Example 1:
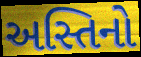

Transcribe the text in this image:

અસ્તિનો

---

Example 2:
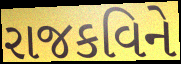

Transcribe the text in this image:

રાજકવિને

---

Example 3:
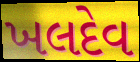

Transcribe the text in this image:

ખલદેવ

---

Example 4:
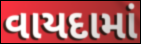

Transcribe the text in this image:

વાયદામાં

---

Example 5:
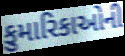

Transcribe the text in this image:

કુમારિકાઓની